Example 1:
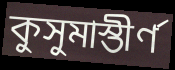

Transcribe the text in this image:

কুসুমাস্তীর্ণ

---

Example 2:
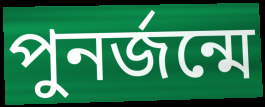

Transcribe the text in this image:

পুনর্জন্মে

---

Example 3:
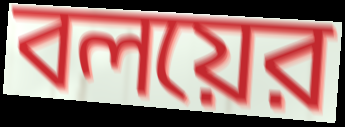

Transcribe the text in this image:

বলয়ের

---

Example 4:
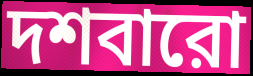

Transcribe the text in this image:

দশবারো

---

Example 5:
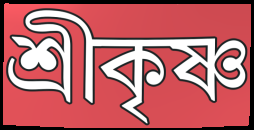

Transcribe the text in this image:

শ্রীকৃষ্ণ